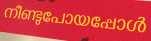
നീണ്ടുപോയപ്പോൾ